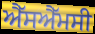
ਐੱਸਐੱਮਸੀ